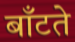
बाँटते